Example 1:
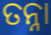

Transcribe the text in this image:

ତନ୍ନା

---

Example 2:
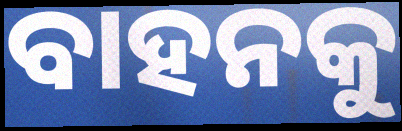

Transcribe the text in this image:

ବାହନକୁ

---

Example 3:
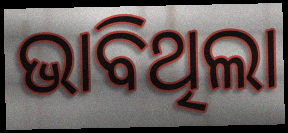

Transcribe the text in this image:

ଭାବିଥିଲା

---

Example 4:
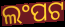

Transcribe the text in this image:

ଲଂପଟ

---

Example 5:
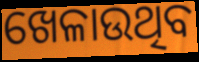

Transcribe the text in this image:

ଖେଳାଉଥିବ